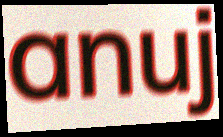
anuj